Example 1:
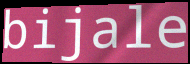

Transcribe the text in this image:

bijale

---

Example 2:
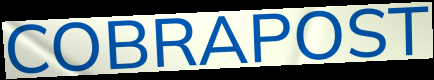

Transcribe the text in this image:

COBRAPOST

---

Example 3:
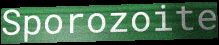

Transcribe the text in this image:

Sporozoite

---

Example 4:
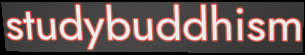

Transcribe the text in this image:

studybuddhism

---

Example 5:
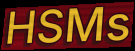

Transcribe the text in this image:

HSMs